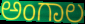
ಅಂಗಾಲ